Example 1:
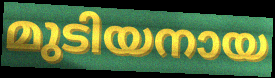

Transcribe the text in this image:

മുടിയനായ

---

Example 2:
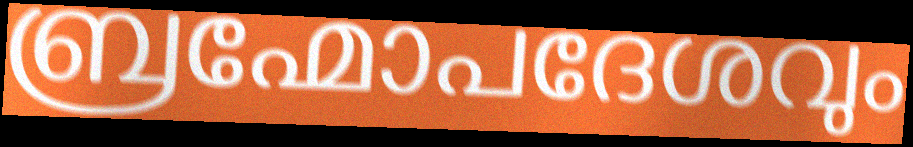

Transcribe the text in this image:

ബ്രഹ്മോപദേശവും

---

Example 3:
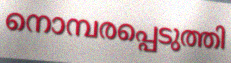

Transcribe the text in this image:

നൊമ്പരപ്പെടുത്തി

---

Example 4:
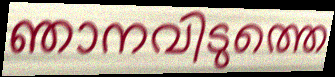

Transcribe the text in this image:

ഞാനവിടുത്തെ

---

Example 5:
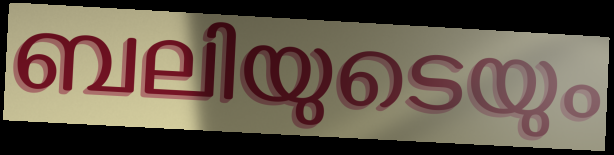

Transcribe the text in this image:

ബലിയുടെയും